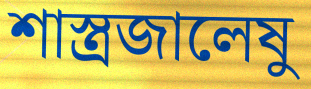
শাস্ত্রজালেষু